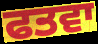
ਫਤਵਾ